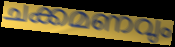
ചക്കമണവും